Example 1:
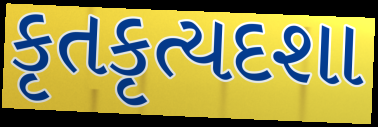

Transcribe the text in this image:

કૃતકૃત્યદશા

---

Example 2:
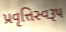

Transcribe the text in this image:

પ્રવૃત્તિસ્વરૂપ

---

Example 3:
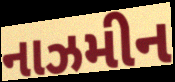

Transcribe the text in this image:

નાઝમીન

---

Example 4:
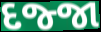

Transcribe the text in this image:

દજ્જા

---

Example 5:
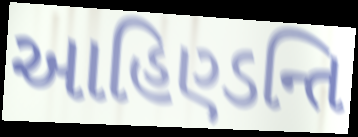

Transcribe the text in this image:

આહિણ્ડન્તિ